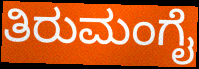
ತಿರುಮಂಗೈ